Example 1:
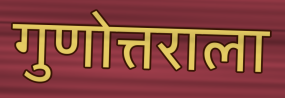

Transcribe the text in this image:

गुणोत्तराला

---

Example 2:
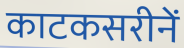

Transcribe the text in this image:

काटकसरीनें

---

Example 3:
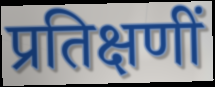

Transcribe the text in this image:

प्रतिक्षणीं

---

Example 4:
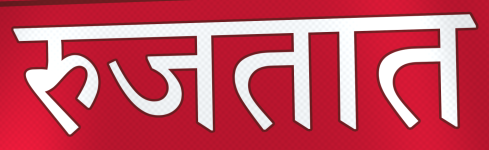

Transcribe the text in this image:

रुजतात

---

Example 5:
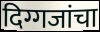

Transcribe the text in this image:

दिग्गजांचा